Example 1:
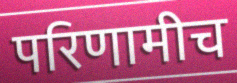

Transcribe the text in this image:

परिणामीच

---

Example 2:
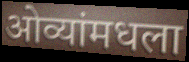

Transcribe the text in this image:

ओव्यांमधला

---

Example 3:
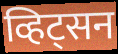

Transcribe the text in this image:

व्हिट्सन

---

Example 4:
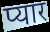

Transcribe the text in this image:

प्यार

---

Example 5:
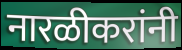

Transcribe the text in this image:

नारळीकरांनी